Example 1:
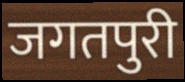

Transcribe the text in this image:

जगतपुरी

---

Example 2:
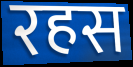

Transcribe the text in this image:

रहस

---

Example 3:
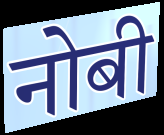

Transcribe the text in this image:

नोबी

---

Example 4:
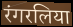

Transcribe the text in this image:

रंगरलिया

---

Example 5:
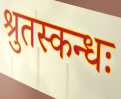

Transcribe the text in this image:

श्रुतस्कन्धः